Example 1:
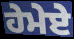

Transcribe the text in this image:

ਹੇਮੇਏ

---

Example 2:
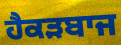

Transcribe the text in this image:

ਹੈਕੜਬਾਜ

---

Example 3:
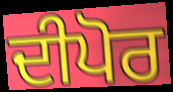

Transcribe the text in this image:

ਦੀਪੋਰ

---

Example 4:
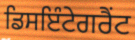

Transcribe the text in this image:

ਡਿਸਇੰਟੇਗਰੈਂਟ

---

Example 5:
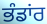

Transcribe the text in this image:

ਭੰਡਾਂਰ